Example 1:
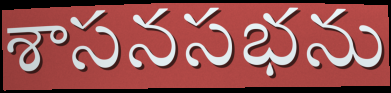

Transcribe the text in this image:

శాసనసభను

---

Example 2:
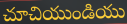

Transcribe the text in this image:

చూచియుండియు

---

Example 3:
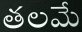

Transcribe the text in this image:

తలమే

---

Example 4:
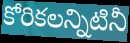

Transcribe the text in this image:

కోరికలన్నిటినీ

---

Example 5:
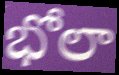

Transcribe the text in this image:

భోలా